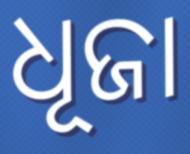
ଧୂଜା